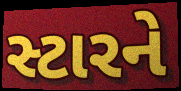
સ્ટારને